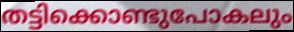
തട്ടിക്കൊണ്ടുപോകലും